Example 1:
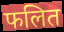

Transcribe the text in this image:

फलित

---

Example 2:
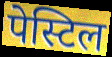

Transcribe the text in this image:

पेस्टिल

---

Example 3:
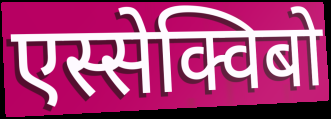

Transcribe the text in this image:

एस्सेक्विबो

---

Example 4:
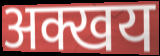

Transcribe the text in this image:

अक्खय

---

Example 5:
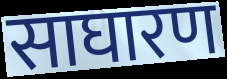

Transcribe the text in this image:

साघारण